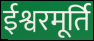
ईश्वरमूर्ति